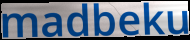
madbeku